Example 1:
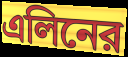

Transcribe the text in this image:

এলিনের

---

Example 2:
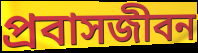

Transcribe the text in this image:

প্রবাসজীবন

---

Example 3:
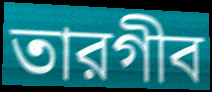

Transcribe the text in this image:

তারগীব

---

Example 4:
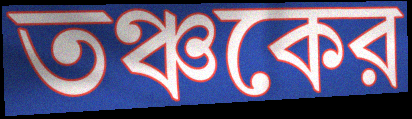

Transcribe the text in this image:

তঞ্চকের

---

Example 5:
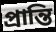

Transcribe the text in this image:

প্রান্তি